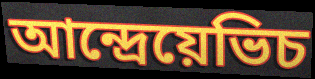
আন্দ্রেয়েভিচ